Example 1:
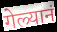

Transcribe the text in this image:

गेल्यानं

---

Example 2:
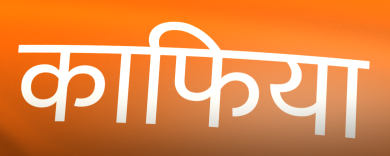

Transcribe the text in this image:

काफिया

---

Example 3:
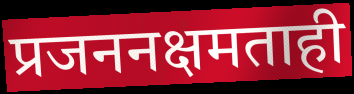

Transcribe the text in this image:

प्रजननक्षमताही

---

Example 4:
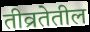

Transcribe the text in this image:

तीव्रतेतील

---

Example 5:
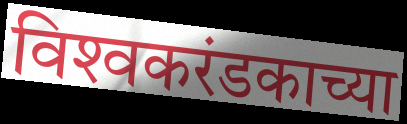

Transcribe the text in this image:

विश्‍वकरंडकाच्या